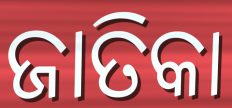
ଜାତିକା